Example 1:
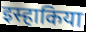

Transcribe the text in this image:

इस्हाकिया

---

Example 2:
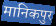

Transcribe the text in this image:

मानिकपुर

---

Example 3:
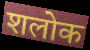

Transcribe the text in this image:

शलोक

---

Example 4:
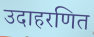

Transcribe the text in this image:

उदाहरणित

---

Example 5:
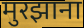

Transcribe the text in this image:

मुरझाना